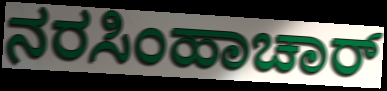
ನರಸಿಂಹಾಚಾರ್